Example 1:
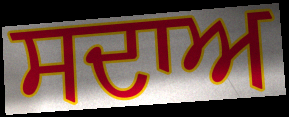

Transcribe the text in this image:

ਸਦਾਅ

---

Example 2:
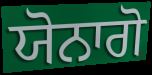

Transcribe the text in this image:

ਯੋਨਾਗੋ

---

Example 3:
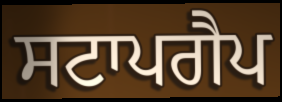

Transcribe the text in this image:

ਸਟਾਪਗੈਪ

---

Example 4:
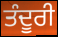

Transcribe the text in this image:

ਤੰਦੂਰੀ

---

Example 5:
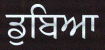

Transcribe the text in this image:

ਡੁਬਿਆ